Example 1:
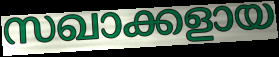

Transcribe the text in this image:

സഖാക്കളായ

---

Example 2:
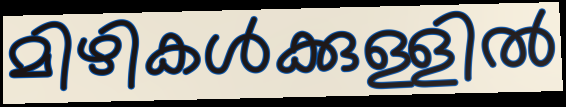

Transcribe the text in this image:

മിഴികൾക്കുള്ളിൽ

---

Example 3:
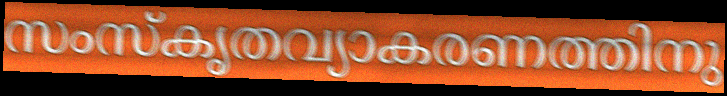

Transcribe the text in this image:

സംസ്കൃതവ്യാകരണത്തിനു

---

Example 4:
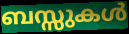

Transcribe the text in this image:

ബസ്സുകൾ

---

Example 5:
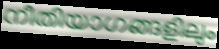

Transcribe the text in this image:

നീതിയാഗങ്ങളിലും